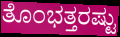
ತೊಂಭತ್ತರಷ್ಟು